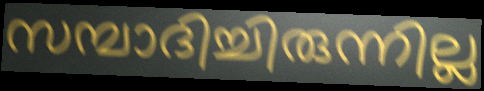
സമ്പാദിച്ചിരുന്നില്ല